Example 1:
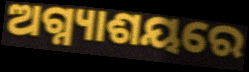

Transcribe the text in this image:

ଅଗ୍ନ୍ୟାଶୟରେ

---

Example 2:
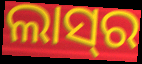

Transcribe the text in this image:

ଲାସ୍‍ର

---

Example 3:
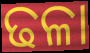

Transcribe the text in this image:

ଢଳା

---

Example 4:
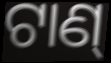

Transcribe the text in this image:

ଟାଣ୍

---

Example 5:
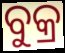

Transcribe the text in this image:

ବୁକ୍ର